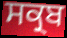
ਸਕ੍ਰਬ